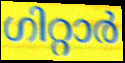
ഗിറ്റാർ